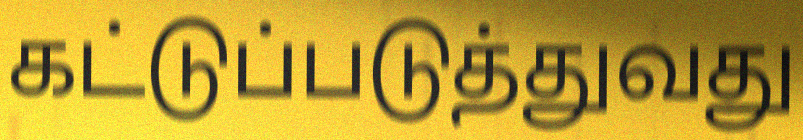
கட்டுப்படுத்துவது